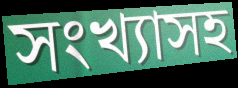
সংখ্যাসহ